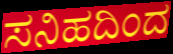
ಸನಿಹದಿಂದ